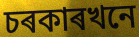
চৰকাৰখনে